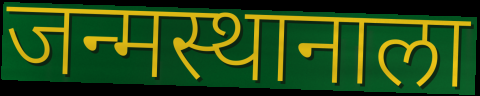
जन्मस्थानाला